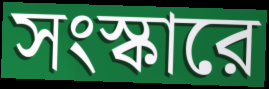
সংস্কারে